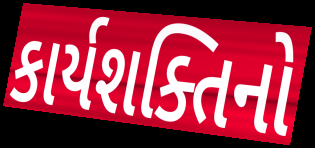
કાર્યશક્તિનો